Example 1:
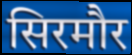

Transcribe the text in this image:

सिरमौर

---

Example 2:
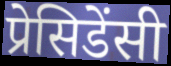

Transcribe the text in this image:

प्रेसिडेंसी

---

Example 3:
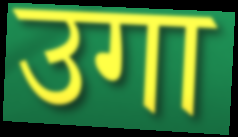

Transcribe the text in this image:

उगा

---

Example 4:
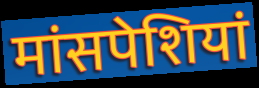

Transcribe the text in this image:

मांसपेशियां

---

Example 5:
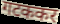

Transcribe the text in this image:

गटककर